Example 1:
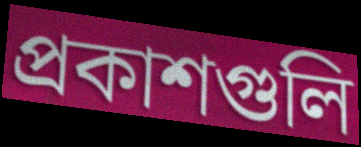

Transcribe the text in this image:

প্রকাশগুলি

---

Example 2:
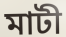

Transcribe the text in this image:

মাটী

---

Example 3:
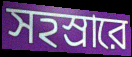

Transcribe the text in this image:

সহস্রারে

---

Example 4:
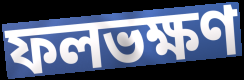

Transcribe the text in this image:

ফলভক্ষণ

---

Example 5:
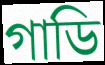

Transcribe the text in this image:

গাডি